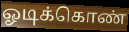
ஓடிக்கொண்